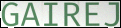
GAIREJ